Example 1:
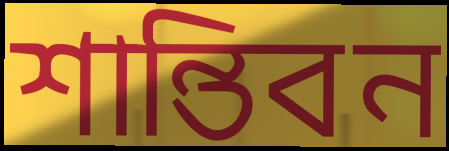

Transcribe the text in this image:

শান্তিবন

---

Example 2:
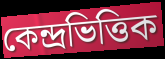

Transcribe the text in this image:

কেন্দ্রভিত্তিক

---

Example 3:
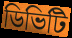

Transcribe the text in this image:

ডিভিটি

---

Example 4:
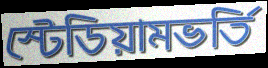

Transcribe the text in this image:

স্টেডিয়ামভর্তি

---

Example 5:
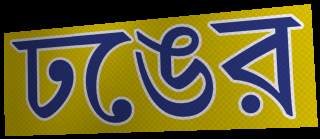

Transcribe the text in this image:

ঢঙের